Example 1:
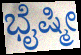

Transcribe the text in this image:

ಭೈಷ್ಮೀ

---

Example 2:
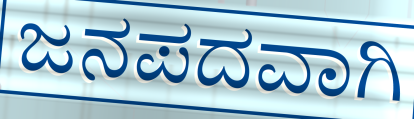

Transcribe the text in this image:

ಜನಪದವಾಗಿ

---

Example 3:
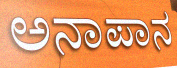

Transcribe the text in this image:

ಅನಾಪಾನ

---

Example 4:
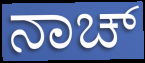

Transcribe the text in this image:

ನಾಚ್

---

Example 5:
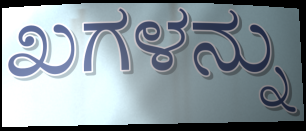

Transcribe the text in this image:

ಖಗಳನ್ನು